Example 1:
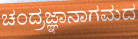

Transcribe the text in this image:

ಚಂದ್ರಜ್ಞಾನಾಗಮದ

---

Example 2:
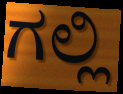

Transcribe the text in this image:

ಗಲ್ಲಿ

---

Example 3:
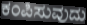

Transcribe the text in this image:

ಕಂಪಿಸುವುದು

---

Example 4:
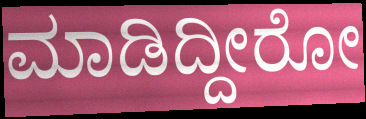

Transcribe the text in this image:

ಮಾಡಿದ್ದೀರೋ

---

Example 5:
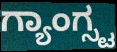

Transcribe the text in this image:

ಗ್ಯಾಂಗ್ಸ್ಟ